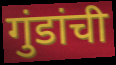
गुंडांची